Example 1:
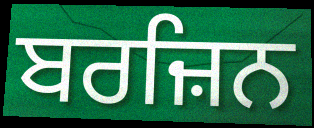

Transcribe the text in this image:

ਬਰਜ਼ਿਨ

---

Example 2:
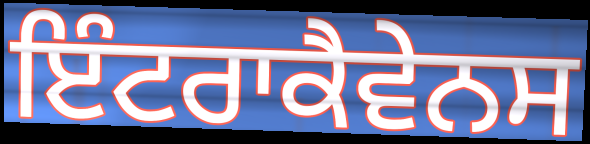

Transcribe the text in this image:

ਇੰਟਰਾਕੈਵੇਨਸ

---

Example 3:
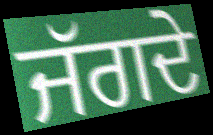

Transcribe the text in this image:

ਜੱਗਦੇ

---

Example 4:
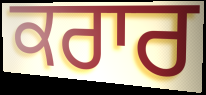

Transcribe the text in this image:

ਕਰਾਰ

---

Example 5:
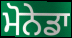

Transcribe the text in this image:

ਮੋਨੇਡਾ